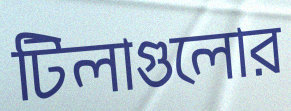
টিলাগুলোর